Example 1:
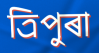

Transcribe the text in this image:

ত্ৰিপুৰা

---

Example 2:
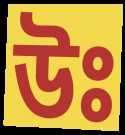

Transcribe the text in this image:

উঃ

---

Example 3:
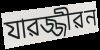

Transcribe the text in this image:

যাৱজ্জীৱন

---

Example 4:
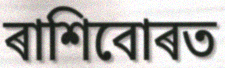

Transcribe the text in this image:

ৰাশিবোৰত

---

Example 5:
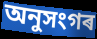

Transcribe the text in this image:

অনুসংগৰ